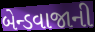
બેન્ડવાજાની